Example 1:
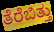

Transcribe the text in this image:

ತೆರೆಬಿತ್ತು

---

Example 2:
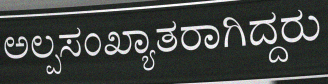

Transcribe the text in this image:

ಅಲ್ಪಸಂಖ್ಯಾತರಾಗಿದ್ದರು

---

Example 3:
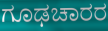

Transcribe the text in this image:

ಗೂಢಚಾರರ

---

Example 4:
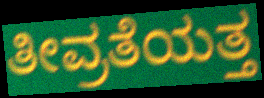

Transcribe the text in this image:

ತೀವ್ರತೆಯತ್ತ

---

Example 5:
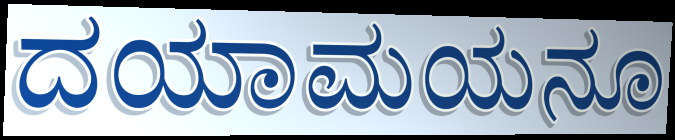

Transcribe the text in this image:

ದಯಾಮಯನೂ